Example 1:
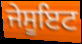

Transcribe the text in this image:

ਜੇਸੂਇਟ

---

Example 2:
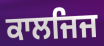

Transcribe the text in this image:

ਕਾਲਜਿਜ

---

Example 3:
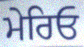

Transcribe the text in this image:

ਮੇਰਿਓ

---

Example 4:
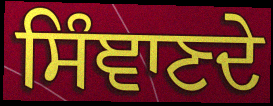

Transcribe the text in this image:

ਸਿੰਞਾਣਦੇ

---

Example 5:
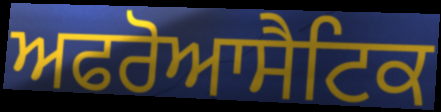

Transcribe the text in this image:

ਅਫਰੋਆਸੈਟਿਕ